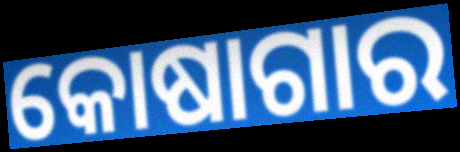
କୋଷାଗାର